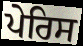
ਪੇਰਿਸ